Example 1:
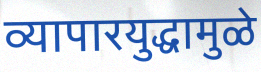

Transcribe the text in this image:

व्यापारयुद्धामुळे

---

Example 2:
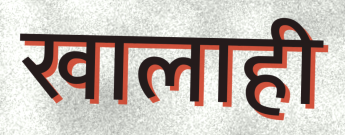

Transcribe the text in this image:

खालाही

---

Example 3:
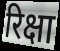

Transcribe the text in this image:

रिक्षा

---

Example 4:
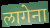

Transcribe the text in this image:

लागेना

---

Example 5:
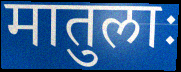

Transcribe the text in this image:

मातुलाः